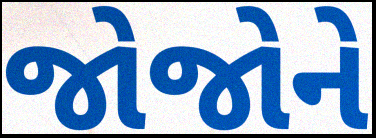
જોજોને